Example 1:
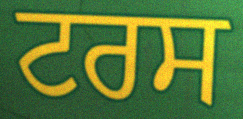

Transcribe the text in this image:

ਟਰਸ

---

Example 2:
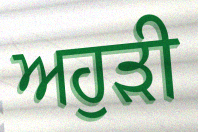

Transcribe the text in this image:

ਅਹੁੜੀ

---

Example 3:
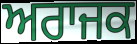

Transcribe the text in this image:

ਅਰਾਜਕ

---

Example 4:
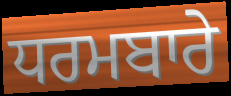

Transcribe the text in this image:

ਧਰਮਬਾਰੇ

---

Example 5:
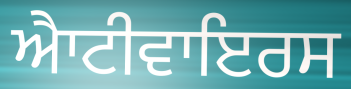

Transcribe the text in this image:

ਐਾਟੀਵਾਇਰਸ